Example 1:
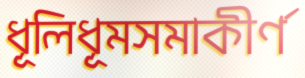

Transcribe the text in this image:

ধূলিধূমসমাকীর্ণ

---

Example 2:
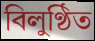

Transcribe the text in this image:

বিলুণ্ঠিত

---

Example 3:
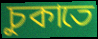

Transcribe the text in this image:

চুকাতে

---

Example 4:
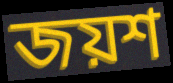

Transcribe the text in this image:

জয়শ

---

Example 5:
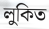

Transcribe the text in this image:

লুকিত